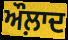
ਔਲ਼ਾਦ